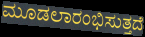
ಮೂಡಲಾರಂಭಿಸುತ್ತದೆ